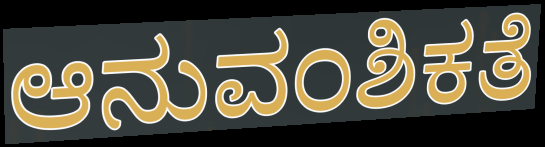
ಆನುವಂಶಿಕತೆ